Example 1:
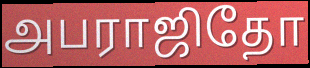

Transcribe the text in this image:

அபராஜிதோ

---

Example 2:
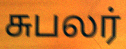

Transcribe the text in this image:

சுபலர்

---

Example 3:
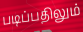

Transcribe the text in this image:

படிப்பதிலும்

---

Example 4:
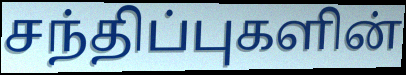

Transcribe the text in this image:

சந்திப்புகளின்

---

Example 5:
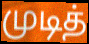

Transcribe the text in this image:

முடித்